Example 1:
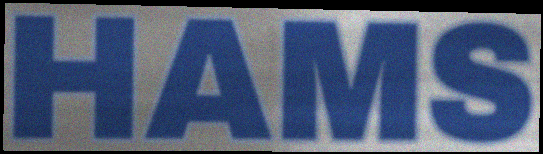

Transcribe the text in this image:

HAMS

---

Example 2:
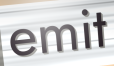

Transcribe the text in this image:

emit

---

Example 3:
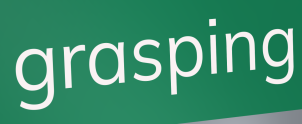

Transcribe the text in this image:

grasping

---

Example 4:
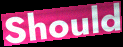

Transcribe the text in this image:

Should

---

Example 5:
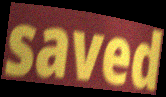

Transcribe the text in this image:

saved